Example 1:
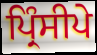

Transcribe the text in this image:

ਪ੍ਰਿੰਸੀਪੇ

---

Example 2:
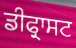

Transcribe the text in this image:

ਡੀਫ੍ਰਾਸਟ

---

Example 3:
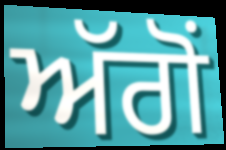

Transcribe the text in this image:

ਅੱਗੋਂ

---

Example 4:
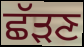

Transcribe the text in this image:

ਛੱੜਣ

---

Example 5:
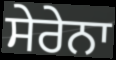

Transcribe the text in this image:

ਸੇਰੇਨਾ